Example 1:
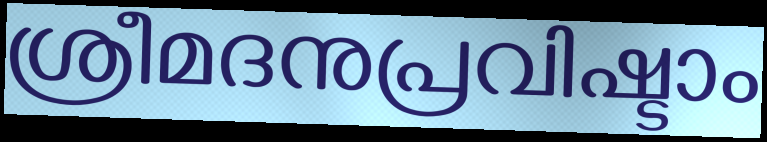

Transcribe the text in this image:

ശ്രീമദനുപ്രവിഷ്ടാം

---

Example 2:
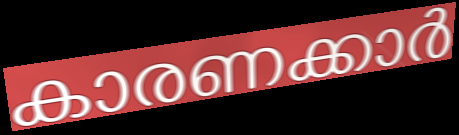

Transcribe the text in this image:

കാരണക്കാർ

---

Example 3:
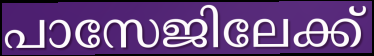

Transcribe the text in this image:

പാസേജിലേക്ക്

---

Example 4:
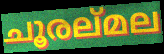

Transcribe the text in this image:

ചൂരല്മല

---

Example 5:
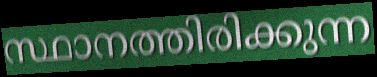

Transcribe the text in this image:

സ്ഥാനത്തിരിക്കുന്ന